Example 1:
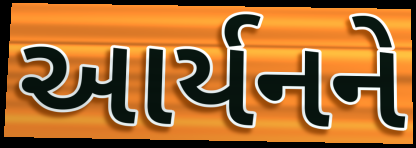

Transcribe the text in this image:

આર્યનને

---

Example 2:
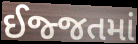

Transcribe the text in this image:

ઈજ્જતમાં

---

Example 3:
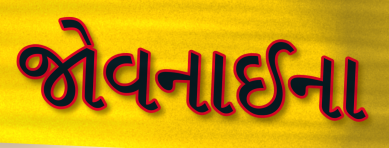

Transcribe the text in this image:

જોવનાઈના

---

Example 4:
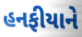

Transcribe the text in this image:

હનફીયાને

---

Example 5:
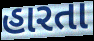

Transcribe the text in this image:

હારતા